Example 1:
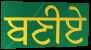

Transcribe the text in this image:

ਬਣੀਏ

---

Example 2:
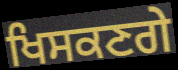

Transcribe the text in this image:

ਖਿਸਕਣਗੇ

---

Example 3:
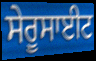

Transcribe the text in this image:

ਸੇਰੂਸਾਈਟ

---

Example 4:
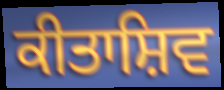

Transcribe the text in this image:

ਕੀਤਾਸ਼ਿਵ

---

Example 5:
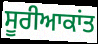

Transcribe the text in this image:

ਸੂਰੀਆਕਾਂਤ